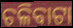
ଚଳିବାଟା